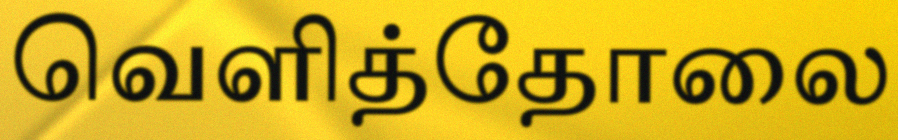
வெளித்தோலை